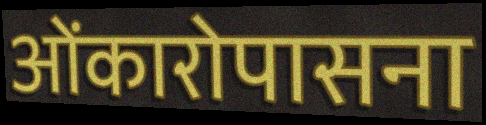
ओंकारोपासना